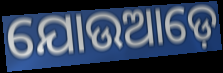
ଯୋଉଆଡ଼େ